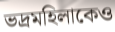
ভদ্রমহিলাকেও